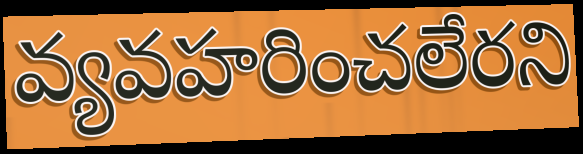
వ్యవహరించలేరని